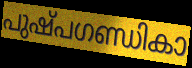
പുഷ്പഗണ്ഡികാ